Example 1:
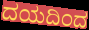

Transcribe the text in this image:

ದಯದಿಂದ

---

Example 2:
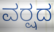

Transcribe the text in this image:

ವರ್‍ಷದ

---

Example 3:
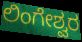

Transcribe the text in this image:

ಲಿಂಗೇಶ್ವರ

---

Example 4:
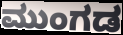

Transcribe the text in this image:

ಮುಂಗಡ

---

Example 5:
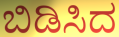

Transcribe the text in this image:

ಬಿಡಿಸಿದ